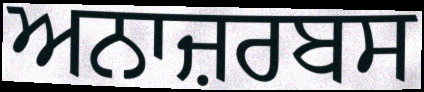
ਅਨਾਜ਼ਰਬਸ